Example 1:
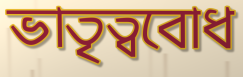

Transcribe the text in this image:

ভাতৃত্ববোধ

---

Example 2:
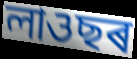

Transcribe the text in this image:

লাওছৰ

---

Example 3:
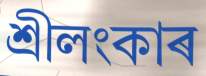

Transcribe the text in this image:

শ্ৰীলংকাৰ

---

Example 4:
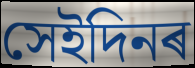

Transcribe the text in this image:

সেইদিনৰ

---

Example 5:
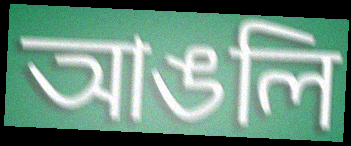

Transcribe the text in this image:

আঙলি